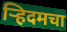
ऱ्हिदमचा